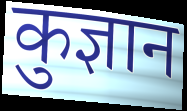
कुज्ञान